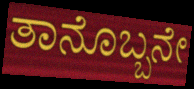
ತಾನೊಬ್ಬನೇ